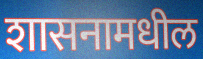
शासनामधील